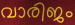
വാരിജം